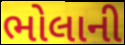
ભોલાની